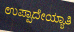
ಉಪ್ಪಾದೇಯ್ಯಾತಿ